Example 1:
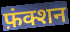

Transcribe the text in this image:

फ़ंक्शन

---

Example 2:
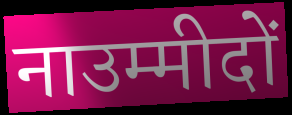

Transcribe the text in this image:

नाउम्मीदों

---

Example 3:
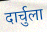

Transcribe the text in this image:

दार्चुला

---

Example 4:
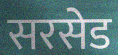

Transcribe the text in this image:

सरसेड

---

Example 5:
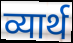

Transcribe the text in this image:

व्यार्थ